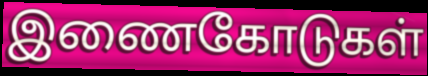
இணைகோடுகள்